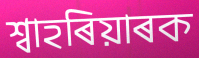
শ্বাহৰিয়াৰক